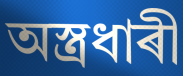
অস্ত্ৰধাৰী